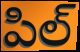
పిల్